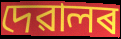
দেৱালৰ